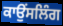
ਕਾਉੰਸਲਿੰਗ